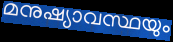
മനുഷ്യാവസ്ഥയും